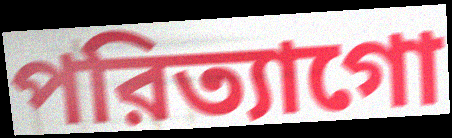
পরিত্যাগো